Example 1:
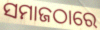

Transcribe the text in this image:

ସମାଜଠାରେ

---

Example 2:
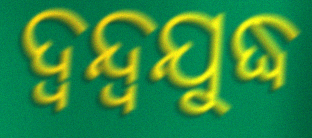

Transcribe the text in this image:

ଦ୍ୱନ୍ଦ୍ୱଯୁଦ୍ଧ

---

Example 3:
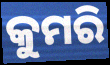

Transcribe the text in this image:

କୁମରି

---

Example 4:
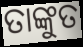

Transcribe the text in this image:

ତାଙ୍କୁତ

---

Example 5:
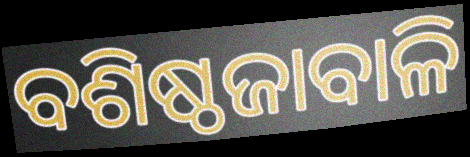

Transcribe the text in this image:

ବଶିଷ୍ଠଜାବାଳି